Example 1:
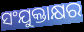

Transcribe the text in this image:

ସଂଯୁକ୍ତାକ୍ଷର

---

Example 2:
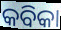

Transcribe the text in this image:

କବିକା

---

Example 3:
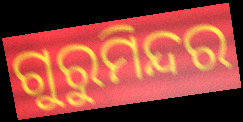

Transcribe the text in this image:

ଗୁରୁମିନ୍ଦର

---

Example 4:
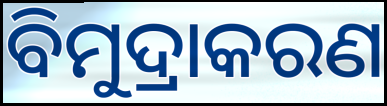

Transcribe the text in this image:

ବିମୁଦ୍ରାକରଣ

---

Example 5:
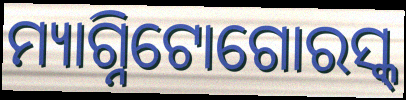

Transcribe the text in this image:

ମ୍ୟାଗ୍ନିଟୋଗୋରସ୍କ୍